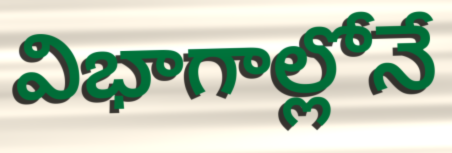
విభాగాల్లోనే